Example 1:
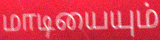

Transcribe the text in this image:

மாடியையும்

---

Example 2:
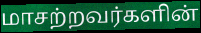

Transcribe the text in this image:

மாசற்றவர்களின்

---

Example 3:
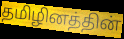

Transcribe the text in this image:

தமிழினத்தின்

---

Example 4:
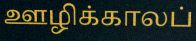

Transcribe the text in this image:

ஊழிக்காலப்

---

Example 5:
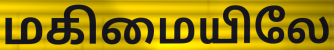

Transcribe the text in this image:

மகிமையிலே